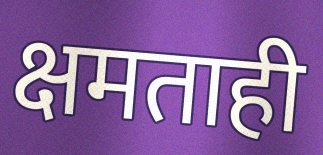
क्षमताही